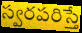
స్వరపరిస్తే